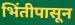
भिंतीपासून